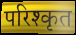
परिश्कृत